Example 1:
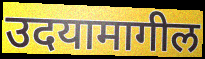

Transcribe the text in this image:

उदयामागील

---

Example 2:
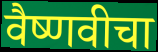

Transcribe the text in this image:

वैष्णवीचा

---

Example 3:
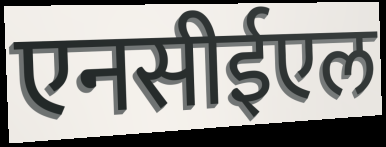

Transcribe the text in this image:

एनसीईएल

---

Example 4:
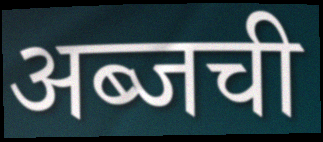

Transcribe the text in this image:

अब्जची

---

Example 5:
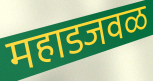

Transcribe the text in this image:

महाडजवळ